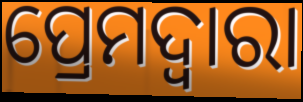
ପ୍ରେମଦ୍ୱାରା